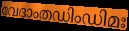
വേദാംതഡിംഡിമഃ